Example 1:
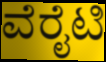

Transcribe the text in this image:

ವೆರೈಟಿ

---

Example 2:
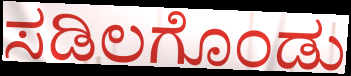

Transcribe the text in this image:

ಸಡಿಲಗೊಂಡು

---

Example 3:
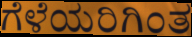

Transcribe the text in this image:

ಗೆಳೆಯರಿಗಿಂತ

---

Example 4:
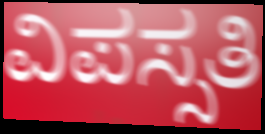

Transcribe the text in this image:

ವಿಪಸ್ಸತಿ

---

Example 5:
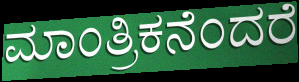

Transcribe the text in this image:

ಮಾಂತ್ರಿಕನೆಂದರೆ